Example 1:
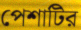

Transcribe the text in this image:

পেশাটির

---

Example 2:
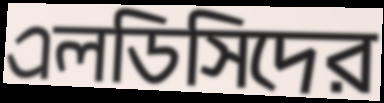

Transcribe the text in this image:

এলডিসিদের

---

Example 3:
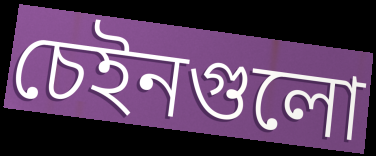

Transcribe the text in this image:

চেইনগুলো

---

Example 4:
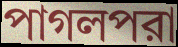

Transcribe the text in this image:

পাগলপরা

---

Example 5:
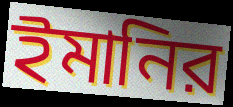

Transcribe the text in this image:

ইমানির